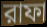
রাফা